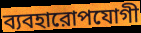
ব্যবহারোপযোগী